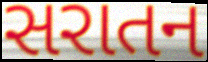
સરાતન